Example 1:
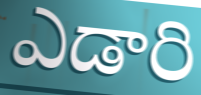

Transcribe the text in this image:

ఎడారి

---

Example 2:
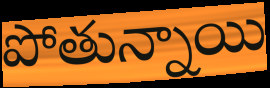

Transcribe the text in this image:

పోతున్నాయి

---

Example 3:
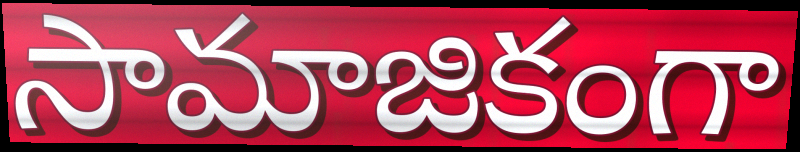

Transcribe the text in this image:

సామాజికంగా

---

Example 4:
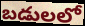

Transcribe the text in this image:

బడులలో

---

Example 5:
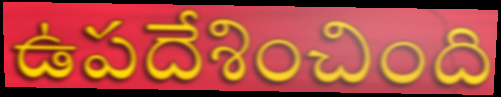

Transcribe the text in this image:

ఉపదేశించింది